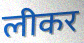
लीकर